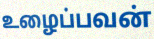
உழைப்பவன்